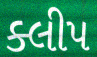
ક્લીપ